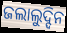
ଜଲାଲୁଦ୍ଦିନ